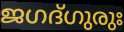
ജഗദ്ഗുരുഃ